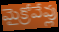
మైక్రోవేవ్లు